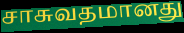
சாசுவதமானது